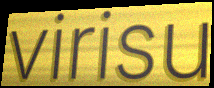
virisu